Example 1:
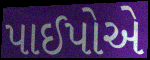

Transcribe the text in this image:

પાઈપોએ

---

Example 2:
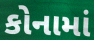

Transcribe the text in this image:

કોનામાં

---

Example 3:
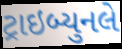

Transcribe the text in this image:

ટ્રાઇબ્યુનલે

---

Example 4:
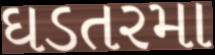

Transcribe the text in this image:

ઘડતરમા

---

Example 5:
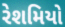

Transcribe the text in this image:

રેશમિયો